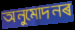
অনুমোদনৰ